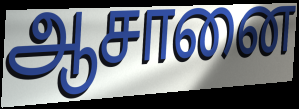
ஆசானை